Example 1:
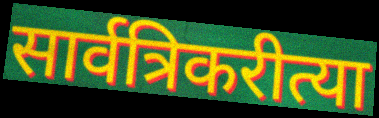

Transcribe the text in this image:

सार्वत्रिकरीत्या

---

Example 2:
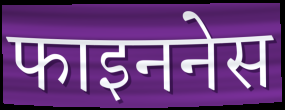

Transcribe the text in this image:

फाइननेस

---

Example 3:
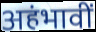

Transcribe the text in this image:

अहंभावीं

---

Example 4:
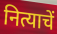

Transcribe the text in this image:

नित्याचें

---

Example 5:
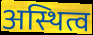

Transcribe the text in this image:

अस्थित्व